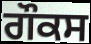
ਗੌਕਸ